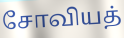
சோவியத்